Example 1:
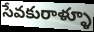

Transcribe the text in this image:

సేవకురాళ్ళూ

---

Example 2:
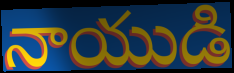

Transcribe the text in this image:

నాయుడి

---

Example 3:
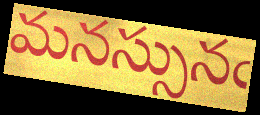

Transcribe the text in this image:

మనస్సునఁ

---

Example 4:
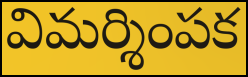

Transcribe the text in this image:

విమర్శింపక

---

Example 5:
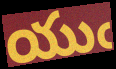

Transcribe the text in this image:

యుఁ